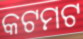
କଟମଟ